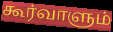
கூர்வாளும்